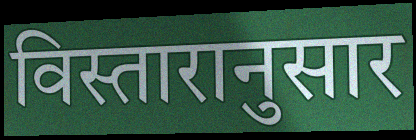
विस्तारानुसार